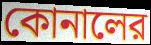
কোনালের